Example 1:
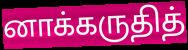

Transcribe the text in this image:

னாக்கருதித்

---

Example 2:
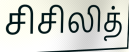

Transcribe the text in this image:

சிசிலித்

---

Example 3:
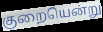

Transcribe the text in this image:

குறையென்று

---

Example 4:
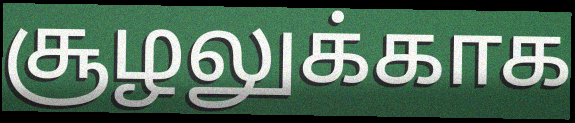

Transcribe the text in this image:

சூழலுக்காக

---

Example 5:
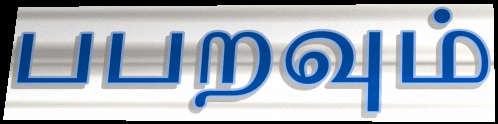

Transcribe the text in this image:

பபறவும்